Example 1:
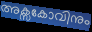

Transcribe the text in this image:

അക്സകോവിനും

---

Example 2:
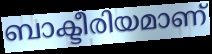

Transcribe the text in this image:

ബാക്ടീരിയമാണ്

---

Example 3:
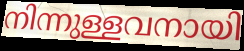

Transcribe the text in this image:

നിന്നുള്ളവനായി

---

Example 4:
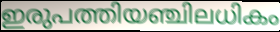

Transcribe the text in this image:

ഇരുപത്തിയഞ്ചിലധികം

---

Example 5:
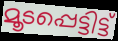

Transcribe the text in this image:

മൂടപ്പെട്ടിട്ട്